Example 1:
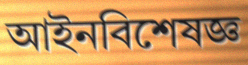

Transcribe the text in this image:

আইনবিশেষজ্ঞ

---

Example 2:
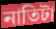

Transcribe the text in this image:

নাতিটা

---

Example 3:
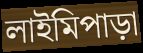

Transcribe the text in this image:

লাইমিপাড়া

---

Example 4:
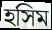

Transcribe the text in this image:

হসিম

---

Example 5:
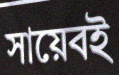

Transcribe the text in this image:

সায়েবই